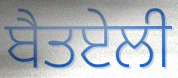
ਬੈਤਏਲੀ